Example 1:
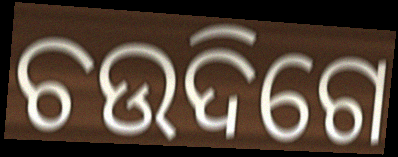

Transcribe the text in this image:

ଚଉଦିଗେ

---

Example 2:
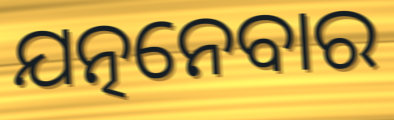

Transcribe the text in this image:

ଯତ୍ନନେବାର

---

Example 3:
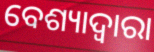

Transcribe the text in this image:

ବେଶ୍ୟାଦ୍ୱାରା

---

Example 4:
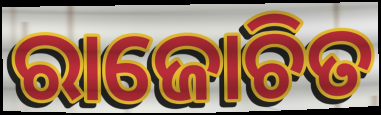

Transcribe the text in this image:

ରାଜୋଚିତ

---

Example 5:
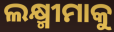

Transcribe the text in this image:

ଲକ୍ଷ୍ମୀମାକୁ